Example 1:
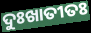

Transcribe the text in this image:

ଦୁଃଖାତୀତଃ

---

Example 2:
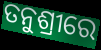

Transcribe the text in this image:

ତନୁଶ୍ରୀରେ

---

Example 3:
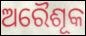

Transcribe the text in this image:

ଅରୈଶୂକ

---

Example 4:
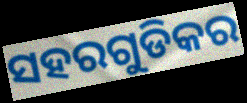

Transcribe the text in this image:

ସହରଗୁଡିକର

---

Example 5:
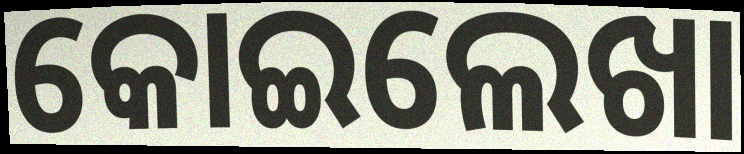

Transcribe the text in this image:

କୋଇଲେଖା